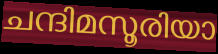
ചന്ദിമസൂരിയാ